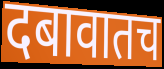
दबावातच